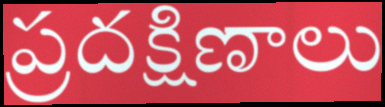
ప్రదక్షిణాలు